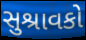
સુશ્રાવકો